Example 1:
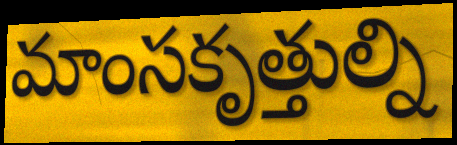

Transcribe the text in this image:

మాంసకృత్తుల్ని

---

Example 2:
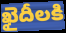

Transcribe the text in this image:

ఖైదీలకి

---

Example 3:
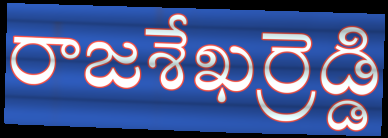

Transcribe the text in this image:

రాజశేఖర్రెడ్డి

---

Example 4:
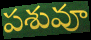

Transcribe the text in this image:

పశువూ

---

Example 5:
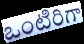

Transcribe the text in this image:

ఒంటిరిగా